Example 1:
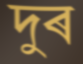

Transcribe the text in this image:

দুৰ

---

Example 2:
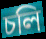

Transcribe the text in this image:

চলি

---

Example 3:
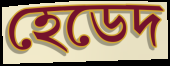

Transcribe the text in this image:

হেডেদ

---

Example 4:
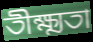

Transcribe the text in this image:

তীক্ষ্মতা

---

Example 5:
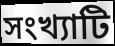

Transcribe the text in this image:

সংখ্যাটি